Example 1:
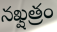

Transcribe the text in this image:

నఖ్షత్రం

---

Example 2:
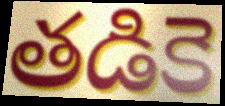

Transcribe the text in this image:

తడికె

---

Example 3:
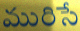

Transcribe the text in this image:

మురిసే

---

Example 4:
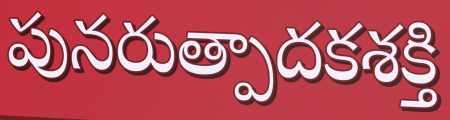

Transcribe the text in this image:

పునరుత్పాదకశక్తి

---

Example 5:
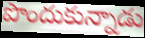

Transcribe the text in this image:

పొందుకున్నాడు